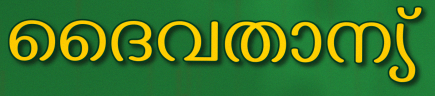
ദൈവതാന്യ്